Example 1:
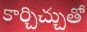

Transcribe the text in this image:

కార్చిచ్చుతో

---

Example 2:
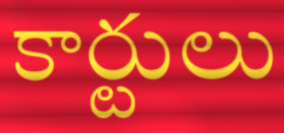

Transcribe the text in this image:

కార్టులు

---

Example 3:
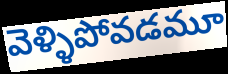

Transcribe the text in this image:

వెళ్ళిపోవడమూ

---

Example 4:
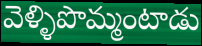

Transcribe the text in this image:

వెళ్ళిపొమ్మంటాడు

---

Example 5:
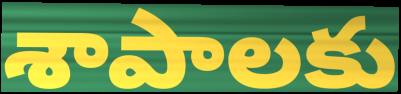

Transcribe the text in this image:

శాపాలకు